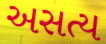
અસત્ય